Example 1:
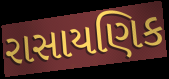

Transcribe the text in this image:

રાસાયણિક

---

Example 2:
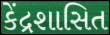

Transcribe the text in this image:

કેંદ્રશાસિત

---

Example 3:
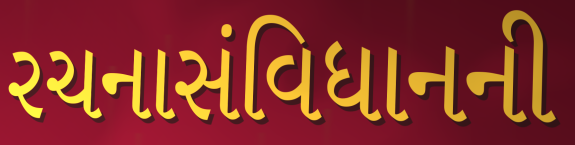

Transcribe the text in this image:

રચનાસંવિધાનની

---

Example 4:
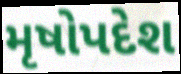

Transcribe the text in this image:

મૃષોપદેશ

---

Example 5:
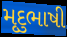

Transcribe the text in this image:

મૃદુભાષી